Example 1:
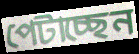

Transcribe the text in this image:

পেটাচ্ছেন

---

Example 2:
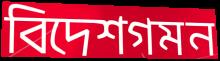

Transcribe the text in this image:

বিদেশগমন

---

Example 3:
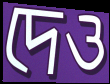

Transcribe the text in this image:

দেও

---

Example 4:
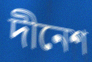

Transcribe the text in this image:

দীনেশ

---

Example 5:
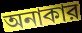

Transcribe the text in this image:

অনাকার